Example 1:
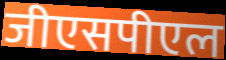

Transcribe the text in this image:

जीएसपीएल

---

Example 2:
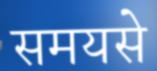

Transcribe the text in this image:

समयसे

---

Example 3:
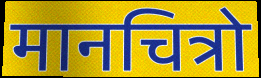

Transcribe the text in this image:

मानचित्रो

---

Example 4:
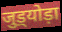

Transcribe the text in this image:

जुड़्योड़ा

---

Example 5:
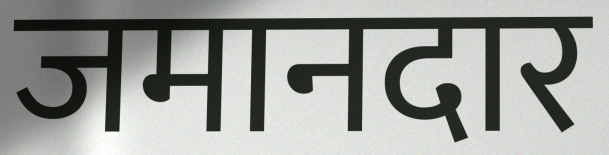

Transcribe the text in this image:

जमानदार